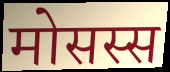
मोसस्स